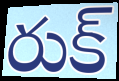
రుక్